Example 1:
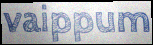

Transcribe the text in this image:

vaippum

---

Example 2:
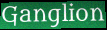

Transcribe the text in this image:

Ganglion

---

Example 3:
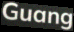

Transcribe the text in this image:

Guang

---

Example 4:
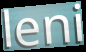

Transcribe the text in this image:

leni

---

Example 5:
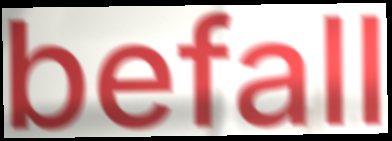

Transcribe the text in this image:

befall